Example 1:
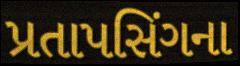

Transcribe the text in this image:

પ્રતાપસિંગના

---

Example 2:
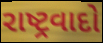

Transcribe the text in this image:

રાષ્ટ્રવાદો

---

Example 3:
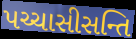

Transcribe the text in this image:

પચ્ચાસીસન્તિ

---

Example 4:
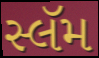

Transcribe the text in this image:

સ્લૅમ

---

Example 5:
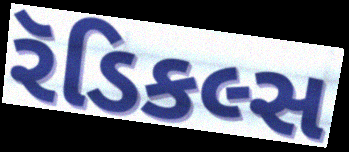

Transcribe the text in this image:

રૅડિકલ્સ